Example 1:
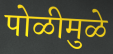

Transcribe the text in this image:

पोळीमुळे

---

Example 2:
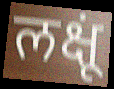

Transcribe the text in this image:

लक्षूं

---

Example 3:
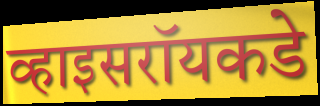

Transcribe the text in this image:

व्हाइसरॉयकडे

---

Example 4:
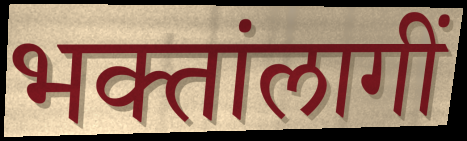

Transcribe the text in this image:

भक्तांलागीं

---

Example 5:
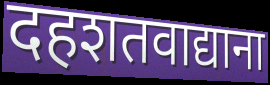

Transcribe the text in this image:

दहशतवाद्याना